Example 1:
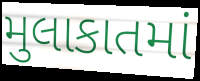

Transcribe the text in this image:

મુલાકાતમાં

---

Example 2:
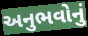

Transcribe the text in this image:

અનુભવોનું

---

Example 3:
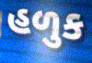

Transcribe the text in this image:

હળુક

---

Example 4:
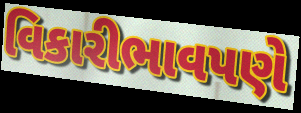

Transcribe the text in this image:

વિકારીભાવપણે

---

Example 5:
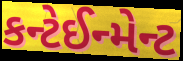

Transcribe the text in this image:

કન્ટેઈન્મેન્ટ